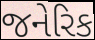
જનેરિક